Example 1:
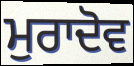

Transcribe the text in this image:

ਮੁਰਾਦੋਵ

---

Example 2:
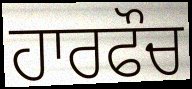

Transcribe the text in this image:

ਹਾਰਫੌਚ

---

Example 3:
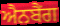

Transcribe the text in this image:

ਐਨਬੈਂਗ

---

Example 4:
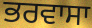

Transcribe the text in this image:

ਭਰਵਾਸਾ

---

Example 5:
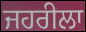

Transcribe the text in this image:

ਜਹਰੀਲਾ